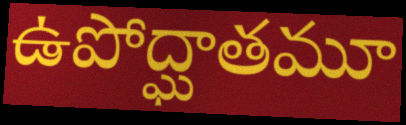
ఉపోద్ఘాతమూ